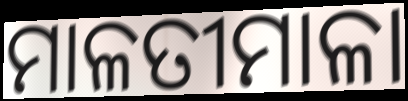
ମାଳତୀମାଳା